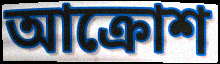
আক্রোশ